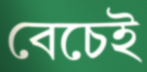
বেচেই